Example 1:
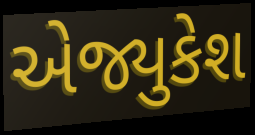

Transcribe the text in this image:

એજ્યુકેશ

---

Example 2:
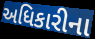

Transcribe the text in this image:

અધિકારીના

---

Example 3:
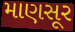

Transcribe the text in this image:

માણસૂર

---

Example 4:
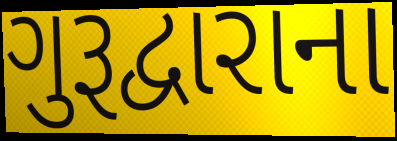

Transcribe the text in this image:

ગુરૂદ્વારાના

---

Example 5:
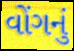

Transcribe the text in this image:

વોંગનું